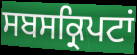
ਸਬਸਕ੍ਰਿਪਟਾਂ